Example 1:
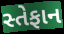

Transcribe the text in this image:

સ્તેફાન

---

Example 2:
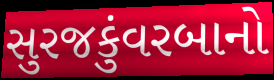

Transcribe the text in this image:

સુરજકુંવરબાનો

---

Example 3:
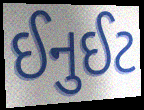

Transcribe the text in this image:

ઈનુઈટ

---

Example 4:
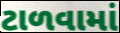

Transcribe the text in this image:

ટાળવામાં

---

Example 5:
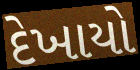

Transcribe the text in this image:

દેખાયો